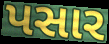
પસાર